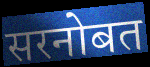
सरनोबत